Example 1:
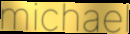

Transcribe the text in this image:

michael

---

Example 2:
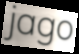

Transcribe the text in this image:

jago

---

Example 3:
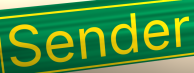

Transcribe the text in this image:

Sender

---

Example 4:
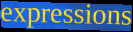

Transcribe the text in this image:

expressions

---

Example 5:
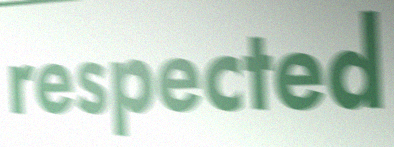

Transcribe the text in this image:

respected